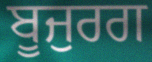
ਬੂਜੁਰਗ